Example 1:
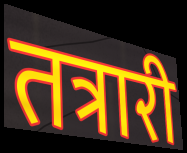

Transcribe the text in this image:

तत्रारी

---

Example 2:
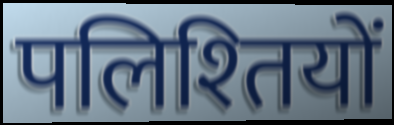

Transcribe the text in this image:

पलिश्‍तियों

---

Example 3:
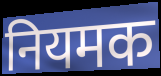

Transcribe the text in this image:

नियमक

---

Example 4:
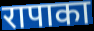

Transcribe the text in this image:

रापाका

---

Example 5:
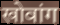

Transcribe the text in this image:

खोवांग